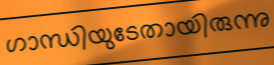
ഗാന്ധിയുടേതായിരുന്നു